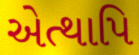
એત્થાપિ